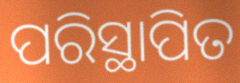
ପରିସ୍ଥାପିତ